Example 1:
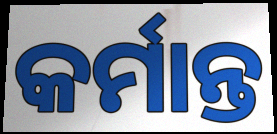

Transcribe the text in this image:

କର୍ମାନ୍ତ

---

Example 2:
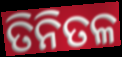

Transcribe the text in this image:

ତିନିତଳ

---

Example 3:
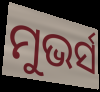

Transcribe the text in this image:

ମୁଭର୍ସ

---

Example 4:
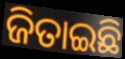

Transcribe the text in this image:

ଜିତାଇଛି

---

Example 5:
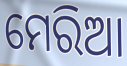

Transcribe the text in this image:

ମେରିଆ